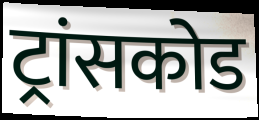
ट्रांसकोड